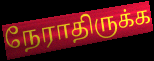
நேராதிருக்க